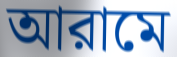
আরামে